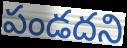
పండదని